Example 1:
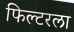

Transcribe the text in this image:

फिल्टरला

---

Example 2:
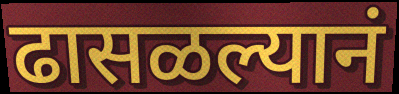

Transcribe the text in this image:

ढासळल्यानं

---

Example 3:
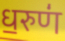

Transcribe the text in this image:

ध॒रुणं॑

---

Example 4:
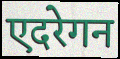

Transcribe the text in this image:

एदरेगन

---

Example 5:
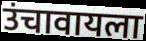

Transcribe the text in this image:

उंचावायला